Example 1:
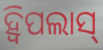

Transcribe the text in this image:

ହ୍ୱିପଲାସ୍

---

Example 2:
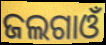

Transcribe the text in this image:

ଜଲଗାଓଁ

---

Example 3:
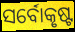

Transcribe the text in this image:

ସର୍ବୋକୃଷ୍ଟ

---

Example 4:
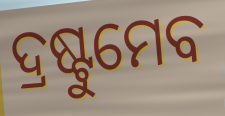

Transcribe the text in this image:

ଦ୍ରଷ୍ଟୁମେବ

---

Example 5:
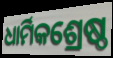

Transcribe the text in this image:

ଧାର୍ମିକଶ୍ରେଷ୍ଠ